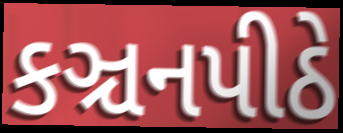
કઞ્ચનપીઠે